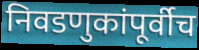
निवडणुकांपूर्वीच